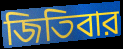
জিতিবার